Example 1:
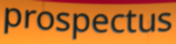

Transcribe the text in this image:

prospectus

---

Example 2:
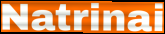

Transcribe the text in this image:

Natrinai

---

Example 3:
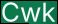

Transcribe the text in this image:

Cwk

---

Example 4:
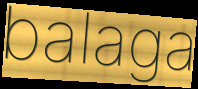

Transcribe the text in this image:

balaga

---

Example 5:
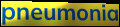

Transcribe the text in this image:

pneumonia